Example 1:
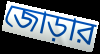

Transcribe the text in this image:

জোড়ার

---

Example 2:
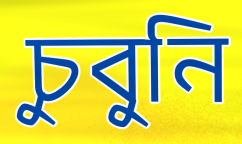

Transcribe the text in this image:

চুবুনি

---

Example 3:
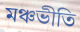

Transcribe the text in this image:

মঞ্চভীতি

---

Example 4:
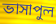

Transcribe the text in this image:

ভাসাপুল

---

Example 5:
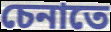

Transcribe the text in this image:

চেনাতে